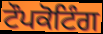
ਟੌਪਕੋਟਿੰਗ